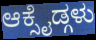
ಆಕ್ಸೈಡ್ಗಳು